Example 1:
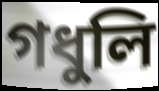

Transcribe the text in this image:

গধুলি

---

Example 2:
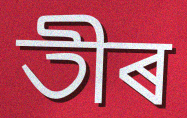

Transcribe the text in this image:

তীৰ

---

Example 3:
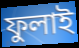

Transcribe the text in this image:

ফুলাই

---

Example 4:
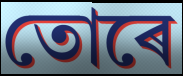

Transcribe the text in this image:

তোৰে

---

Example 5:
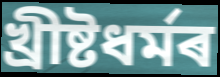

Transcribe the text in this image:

খ্ৰীষ্টধৰ্মৰ